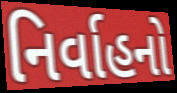
નિર્વાહનો